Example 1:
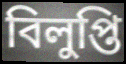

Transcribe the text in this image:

বিলুপ্তি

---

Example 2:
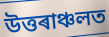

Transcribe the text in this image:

উত্তৰাঞ্চলত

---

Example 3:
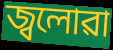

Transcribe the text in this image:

জ্বলোৱা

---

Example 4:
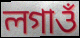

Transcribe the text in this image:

লগাওঁ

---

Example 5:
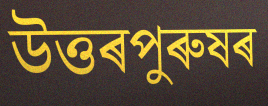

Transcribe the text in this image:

উত্তৰপুৰুষৰ